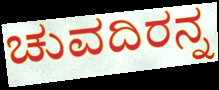
ಚುವದಿರನ್ನ